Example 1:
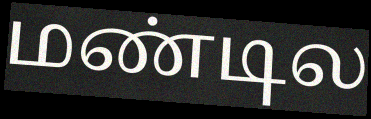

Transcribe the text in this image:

மண்டில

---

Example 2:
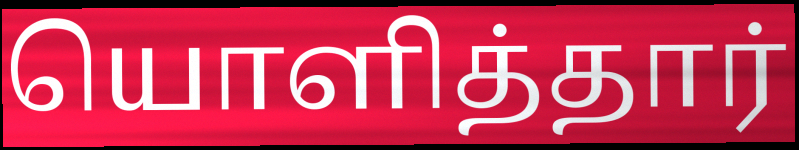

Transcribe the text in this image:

யொளித்தார்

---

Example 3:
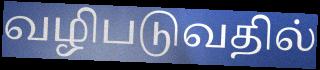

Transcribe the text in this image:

வழிபடுவதில்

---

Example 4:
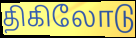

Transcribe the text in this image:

திகிலோடு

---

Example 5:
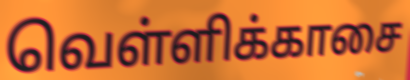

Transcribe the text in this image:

வெள்ளிக்காசை